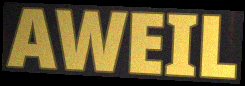
AWEIL